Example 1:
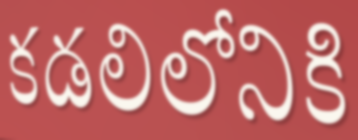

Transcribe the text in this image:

కడలిలోనికి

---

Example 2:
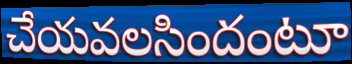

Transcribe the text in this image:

చేయవలసిందంటూ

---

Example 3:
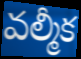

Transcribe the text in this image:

వల్మీక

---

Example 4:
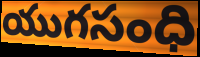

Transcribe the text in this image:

యుగసంధి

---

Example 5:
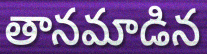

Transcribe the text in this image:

తానమాడిన